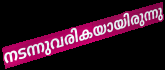
നടന്നുവരികയായിരുന്നു